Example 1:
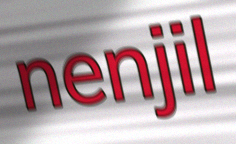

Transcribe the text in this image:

nenjil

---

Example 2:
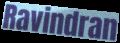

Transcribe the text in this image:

Ravindran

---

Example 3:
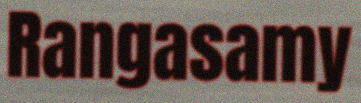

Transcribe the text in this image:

Rangasamy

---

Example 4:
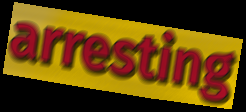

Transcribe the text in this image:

arresting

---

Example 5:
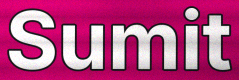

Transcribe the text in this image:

Sumit